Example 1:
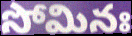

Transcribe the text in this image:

సోమినః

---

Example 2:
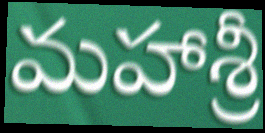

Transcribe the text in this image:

మహాశ్రీ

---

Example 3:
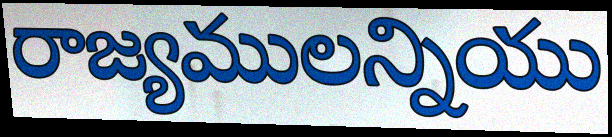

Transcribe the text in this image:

రాజ్యములన్నియు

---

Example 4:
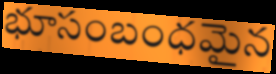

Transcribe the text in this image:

భూసంబంధమైన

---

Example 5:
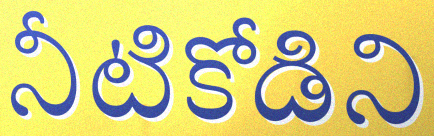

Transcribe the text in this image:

నీటికోడిని